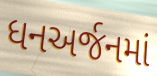
ધનઅર્જનમાં